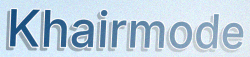
Khairmode